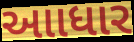
આાધાર